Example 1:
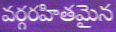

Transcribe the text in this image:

వర్గరహితమైన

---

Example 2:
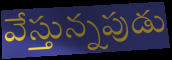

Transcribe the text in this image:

వేస్తున్నపుడు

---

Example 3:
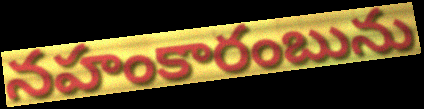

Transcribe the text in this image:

నహంకారంబును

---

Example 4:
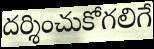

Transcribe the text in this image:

దర్శించుకోగలిగే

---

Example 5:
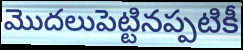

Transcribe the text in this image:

మొదలుపెట్టినప్పటికీ